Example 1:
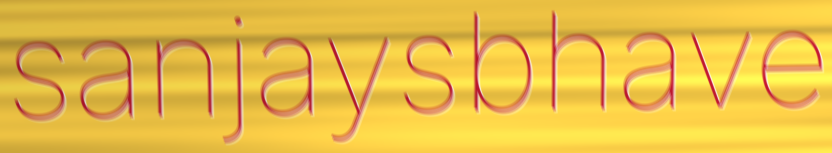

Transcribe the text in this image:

sanjaysbhave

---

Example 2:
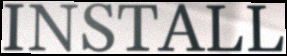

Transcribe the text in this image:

INSTALL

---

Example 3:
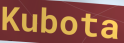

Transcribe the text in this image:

Kubota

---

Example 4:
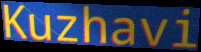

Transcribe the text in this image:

Kuzhavi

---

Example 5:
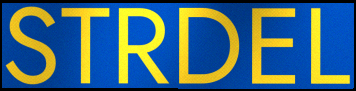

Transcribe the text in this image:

STRDEL